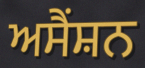
ਅਸੈਂਸ਼ਨ